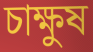
চাক্ষুষ